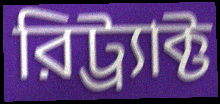
রিট্র্যাক্ট